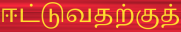
ஈட்டுவதற்குத்